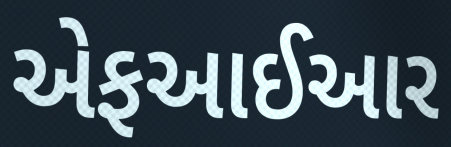
એફઆઈઆર